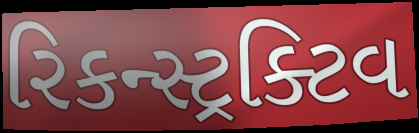
રિકન્સ્ટ્રક્ટિવ